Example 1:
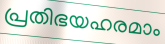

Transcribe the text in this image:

പ്രതിഭയഹരമാം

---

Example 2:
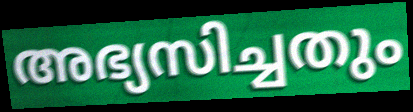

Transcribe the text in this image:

അഭ്യസിച്ചതും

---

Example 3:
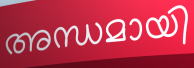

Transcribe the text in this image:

അന്ധമായി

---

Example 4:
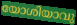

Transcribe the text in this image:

യോശിയാവു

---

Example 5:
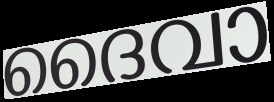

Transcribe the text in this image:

ദൈവാ